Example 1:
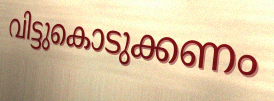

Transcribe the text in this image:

വിട്ടുകൊടുക്കണം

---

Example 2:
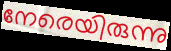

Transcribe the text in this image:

നേരെയിരുന്നു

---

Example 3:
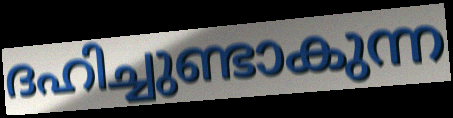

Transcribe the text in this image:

ദഹിച്ചുണ്ടാകുന്ന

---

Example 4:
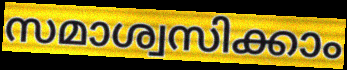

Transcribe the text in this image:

സമാശ്വസിക്കാം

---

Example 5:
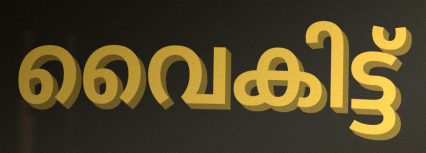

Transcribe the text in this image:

വൈകിട്ട്